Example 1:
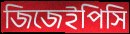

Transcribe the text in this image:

জিজেইপিসি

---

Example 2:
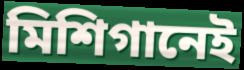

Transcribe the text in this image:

মিশিগানেই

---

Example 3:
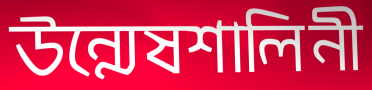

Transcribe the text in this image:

উন্মেষশালিনী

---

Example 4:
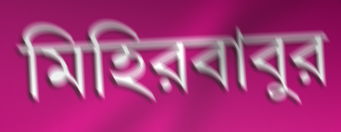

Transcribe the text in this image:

মিহিরবাবুর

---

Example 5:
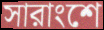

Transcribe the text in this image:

সারাংশে